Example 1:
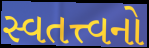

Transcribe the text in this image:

સ્વતત્ત્વનો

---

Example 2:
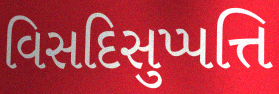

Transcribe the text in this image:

વિસદિસુપ્પત્તિ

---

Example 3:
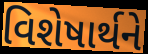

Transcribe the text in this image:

વિશેષાર્થને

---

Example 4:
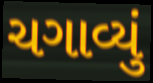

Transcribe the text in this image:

ચગાવ્યું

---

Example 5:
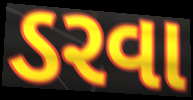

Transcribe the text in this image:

ડરવા